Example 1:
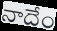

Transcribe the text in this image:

నాదేం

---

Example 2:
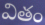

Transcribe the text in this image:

వితం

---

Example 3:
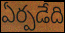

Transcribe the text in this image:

ఏర్పడేది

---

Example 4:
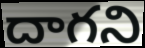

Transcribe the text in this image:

దాగని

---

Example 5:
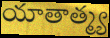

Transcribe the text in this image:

యాతాత్మ్య